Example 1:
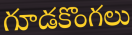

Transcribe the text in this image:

గూడకొంగలు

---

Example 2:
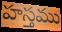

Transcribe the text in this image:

హస్తము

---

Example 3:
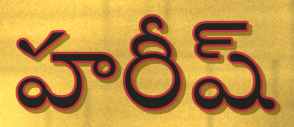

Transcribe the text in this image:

హరీష్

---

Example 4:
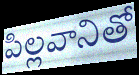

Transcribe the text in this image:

పిల్లవానితో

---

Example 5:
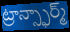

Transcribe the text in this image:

ట్రాన్స్ఫార్మ్